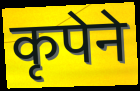
कृपेने